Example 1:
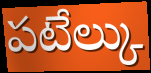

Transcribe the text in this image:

పటేల్కు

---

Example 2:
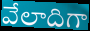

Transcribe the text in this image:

వేలాదిగా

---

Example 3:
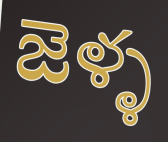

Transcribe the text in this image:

జెళ్ళ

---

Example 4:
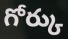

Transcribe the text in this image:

గోర్కు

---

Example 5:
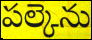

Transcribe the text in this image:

పల్కెను